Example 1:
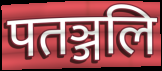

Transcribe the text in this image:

पतञ्जलि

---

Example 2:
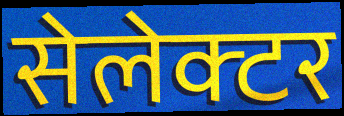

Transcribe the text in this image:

सेलेक्‍टर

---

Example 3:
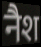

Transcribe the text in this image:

नैश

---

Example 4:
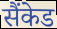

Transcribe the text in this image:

सैंकेड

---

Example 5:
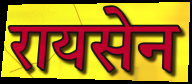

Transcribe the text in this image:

रायसेन